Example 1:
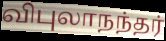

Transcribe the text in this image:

விபுலாநந்தர்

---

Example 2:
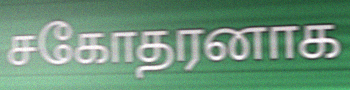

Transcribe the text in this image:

சகோதரனாக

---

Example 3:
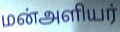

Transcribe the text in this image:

மன்அளியர்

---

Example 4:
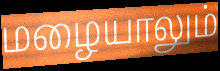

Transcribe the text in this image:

மழையாலும்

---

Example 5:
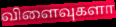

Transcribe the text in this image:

விளைவுகளா